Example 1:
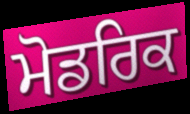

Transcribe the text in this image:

ਮੋਡਰਿਕ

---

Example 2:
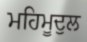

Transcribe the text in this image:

ਮਹਿਮੂਦੁਲ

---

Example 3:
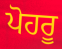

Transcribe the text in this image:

ਪੋਹਰੂ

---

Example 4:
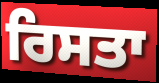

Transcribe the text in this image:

ਰਿਸਤਾ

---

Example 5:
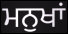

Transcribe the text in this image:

ਮਨੁਖਾਂ